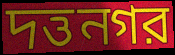
দত্তনগর